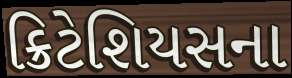
ક્રિટેશિયસના